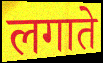
लगाते